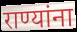
राण्यांना